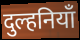
दुल्हनियाँ